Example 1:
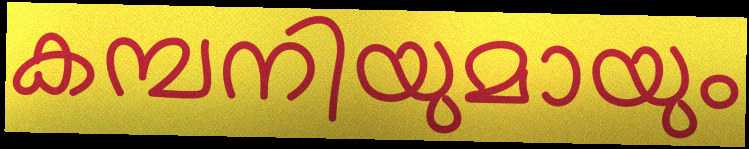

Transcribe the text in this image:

കമ്പനിയുമായും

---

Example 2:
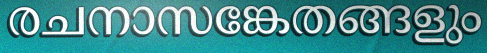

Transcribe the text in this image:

രചനാസങ്കേതങ്ങളും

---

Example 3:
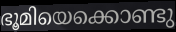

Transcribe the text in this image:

ഭൂമിയെക്കൊണ്ടു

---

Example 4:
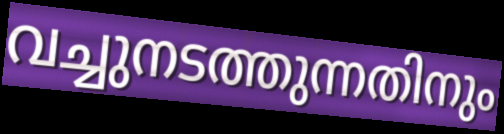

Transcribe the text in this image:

വച്ചുനടത്തുന്നതിനും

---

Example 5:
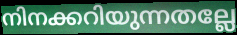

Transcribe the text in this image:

നിനക്കറിയുന്നതല്ലേ